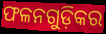
ଫଳନଗୁଡ଼ିକର